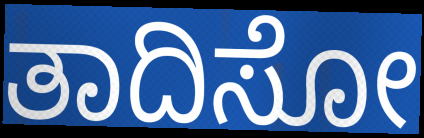
ತಾದಿಸೋ